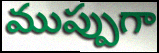
ముప్పుగా